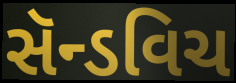
સૅન્ડવિચ